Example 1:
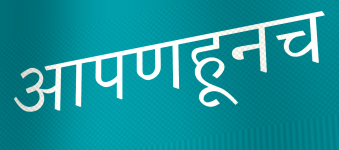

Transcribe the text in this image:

आपणहूनच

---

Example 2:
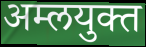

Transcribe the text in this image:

अम्लयुक्त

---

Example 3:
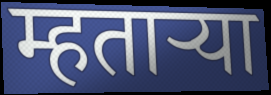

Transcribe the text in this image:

म्हताऱ्या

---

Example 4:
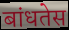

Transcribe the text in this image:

बांधतेस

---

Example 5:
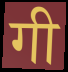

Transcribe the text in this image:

गी